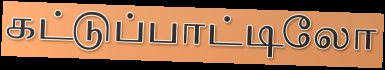
கட்டுப்பாட்டிலோ